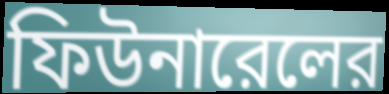
ফিউনারেলের